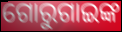
ଗୋରୁଗାଇଙ୍କ